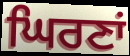
ਘਿਰਣਾਂ